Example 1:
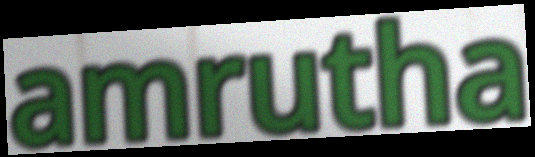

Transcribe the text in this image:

amrutha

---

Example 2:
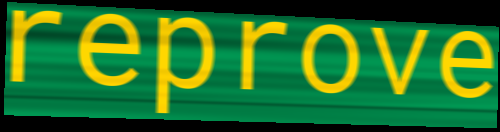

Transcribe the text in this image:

reprove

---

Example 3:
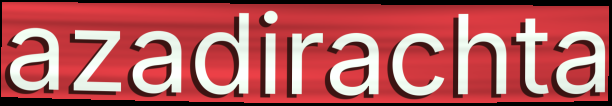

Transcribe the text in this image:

azadirachta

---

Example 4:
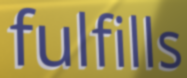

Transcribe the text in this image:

fulfills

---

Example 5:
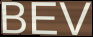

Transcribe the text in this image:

BEV